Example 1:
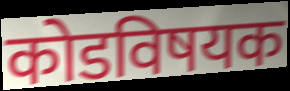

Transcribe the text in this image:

कोडविषयक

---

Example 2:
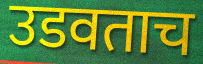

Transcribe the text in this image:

उडवताच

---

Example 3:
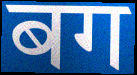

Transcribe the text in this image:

बग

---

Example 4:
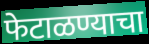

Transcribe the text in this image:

फेटाळण्याचा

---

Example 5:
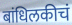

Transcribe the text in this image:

बांधिलकीचं